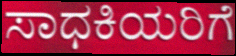
ಸಾಧಕಿಯರಿಗೆ